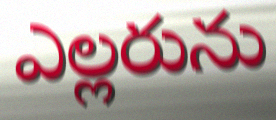
ఎల్లరును